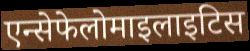
एन्सेफेलोमाइलाइटिस